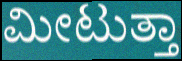
ಮೀಟುತ್ತಾ